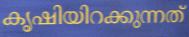
കൃഷിയിറക്കുന്നത്